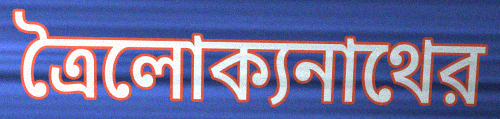
ত্রৈলোক্যনাথের